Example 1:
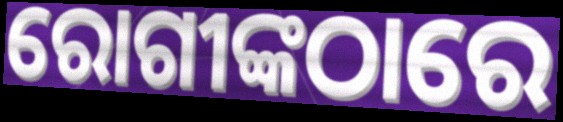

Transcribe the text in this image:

ରୋଗୀଙ୍କଠାରେ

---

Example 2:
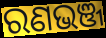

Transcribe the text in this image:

ରଣଭଞ୍ଜ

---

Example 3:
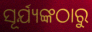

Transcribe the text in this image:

ସୂର୍ଯ୍ୟଙ୍କଠାରୁ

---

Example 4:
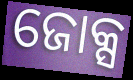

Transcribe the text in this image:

ଜୋକ୍ସ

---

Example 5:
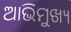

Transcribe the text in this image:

ଆଭିମୁଖ୍ୟ